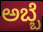
ಅಬ್ಬೆ